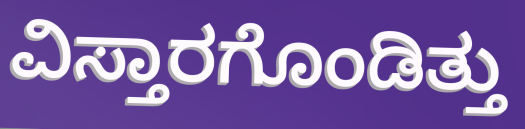
ವಿಸ್ತಾರಗೊಂಡಿತ್ತು